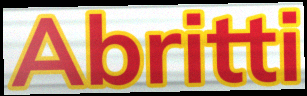
Abritti